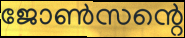
ജോൺസന്റെ